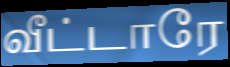
வீட்டாரே